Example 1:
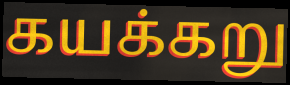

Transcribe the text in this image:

கயக்கறு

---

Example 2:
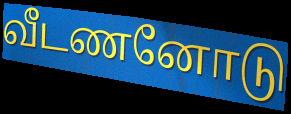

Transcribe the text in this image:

வீடணனோடு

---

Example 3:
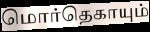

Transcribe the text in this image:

மொர்தெகாயும்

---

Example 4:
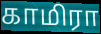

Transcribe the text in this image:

காமிரா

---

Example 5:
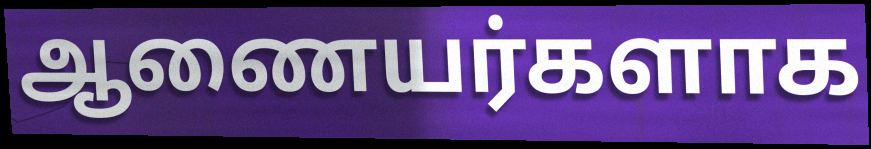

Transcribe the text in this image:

ஆணையர்களாக